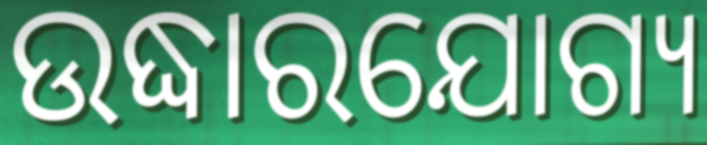
ଉଦ୍ଧାରଯୋଗ୍ୟ